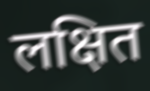
लक्षित